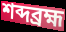
শব্দব্রহ্ম